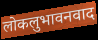
लोकलुभावनवाद